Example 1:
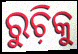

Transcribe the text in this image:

ରୁଚ଼ିକୁ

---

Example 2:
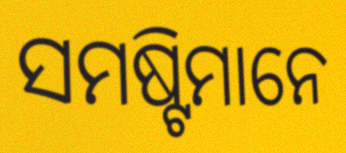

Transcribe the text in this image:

ସମଷ୍ଟିମାନେ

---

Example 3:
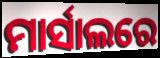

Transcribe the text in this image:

ମାର୍ସାଲରେ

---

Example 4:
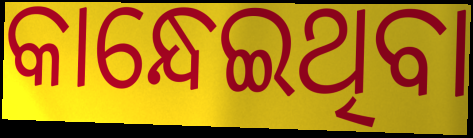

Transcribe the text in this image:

କାନ୍ଧେଇଥିବା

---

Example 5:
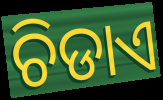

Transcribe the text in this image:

ଚିଡାଏ